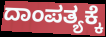
ದಾಂಪತ್ಯಕ್ಕೆ